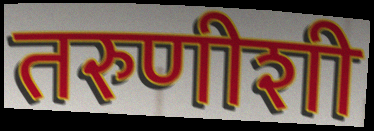
तरुणीशी